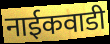
नाईकवाडी